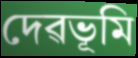
দেৱভূমি